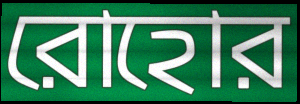
রোহোর